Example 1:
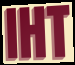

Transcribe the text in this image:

IHT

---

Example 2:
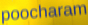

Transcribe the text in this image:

poocharam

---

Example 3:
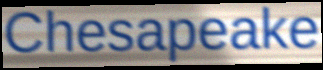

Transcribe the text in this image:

Chesapeake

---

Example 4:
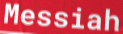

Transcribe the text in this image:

Messiah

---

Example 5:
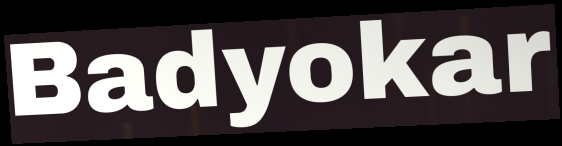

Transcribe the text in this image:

Badyokar